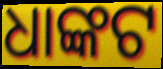
ଧାଙ୍କଟ